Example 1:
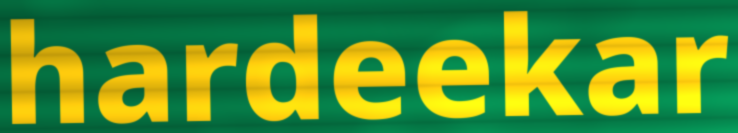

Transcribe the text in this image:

hardeekar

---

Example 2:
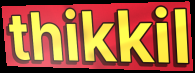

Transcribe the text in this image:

thikkil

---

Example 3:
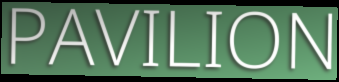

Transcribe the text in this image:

PAVILION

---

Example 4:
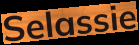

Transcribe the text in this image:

Selassie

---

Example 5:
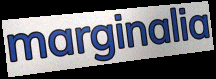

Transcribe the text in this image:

marginalia